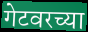
गेटवरच्या